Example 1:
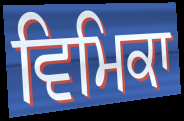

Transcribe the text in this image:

ਵਿਮਿਕਾ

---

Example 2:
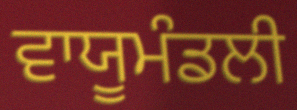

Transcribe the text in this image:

ਵਾਯੂਮੰਡਲੀ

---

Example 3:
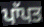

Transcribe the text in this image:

ਪਾੱਪਤ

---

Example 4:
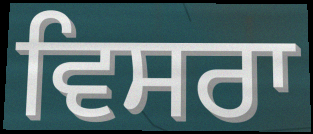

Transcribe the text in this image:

ਵਿਸਰਾ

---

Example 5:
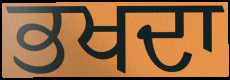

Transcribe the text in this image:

ਭਖਦਾ